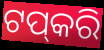
ଟପ୍‌କରି